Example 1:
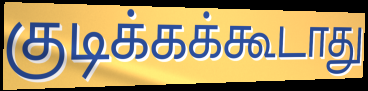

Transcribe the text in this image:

குடிக்கக்கூடாது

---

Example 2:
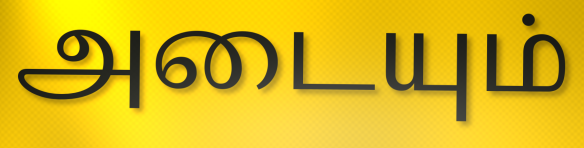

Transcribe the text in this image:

அடையும்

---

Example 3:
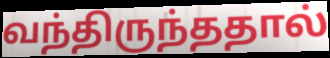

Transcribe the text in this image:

வந்திருந்ததால்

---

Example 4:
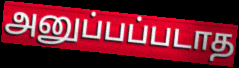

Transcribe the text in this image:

அனுப்பப்படாத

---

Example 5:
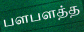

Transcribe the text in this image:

பளபளத்த